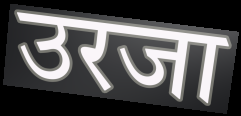
उरजा